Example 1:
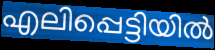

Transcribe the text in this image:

എലിപ്പെട്ടിയിൽ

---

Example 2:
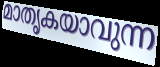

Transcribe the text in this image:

മാതൃകയാവുന്ന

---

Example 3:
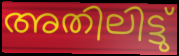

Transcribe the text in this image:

അതിലിട്ടു്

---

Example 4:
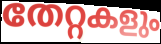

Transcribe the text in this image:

തേറ്റകളും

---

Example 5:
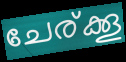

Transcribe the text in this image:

ചേര്ക്കൂ